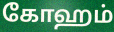
கோஹம்